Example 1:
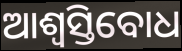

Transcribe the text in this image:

ଆଶ୍ଵସ୍ତିବୋଧ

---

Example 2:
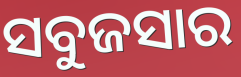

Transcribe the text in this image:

ସବୁଜସାର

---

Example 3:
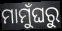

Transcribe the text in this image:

ମାମୁଁଘରୁ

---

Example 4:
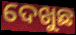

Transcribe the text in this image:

ଦେଖୁଛ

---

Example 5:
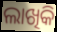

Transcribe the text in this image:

ଲାଖିକି